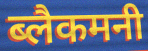
ब्लैकमनी